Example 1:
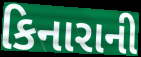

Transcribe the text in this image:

કિનારાની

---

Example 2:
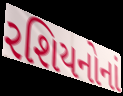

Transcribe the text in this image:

રશિયનોનાં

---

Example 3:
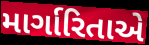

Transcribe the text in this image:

માર્ગારિતાએ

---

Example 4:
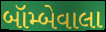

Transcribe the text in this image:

બૉમ્બેવાલા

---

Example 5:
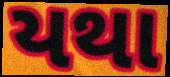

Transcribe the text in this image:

યથા